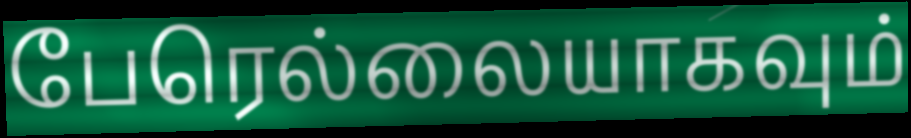
பேரெல்லையாகவும்